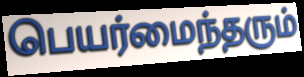
பெயர்மைந்தரும்